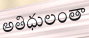
అతిధులంతా